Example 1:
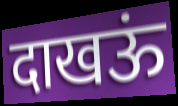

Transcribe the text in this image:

दाखऊं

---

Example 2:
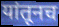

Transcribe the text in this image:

यांतूनच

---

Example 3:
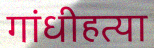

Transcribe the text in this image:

गांधीहत्या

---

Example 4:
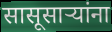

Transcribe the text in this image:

सासूसाऱ्यांना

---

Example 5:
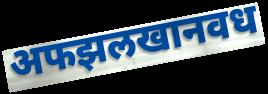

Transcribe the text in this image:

अफझलखानवध